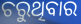
ଚରୁଥିବାର